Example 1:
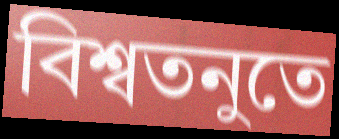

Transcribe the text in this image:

বিশ্বতনুতে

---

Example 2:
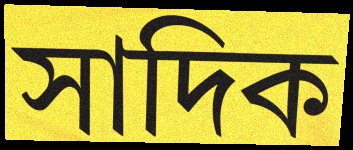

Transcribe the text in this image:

সাদিক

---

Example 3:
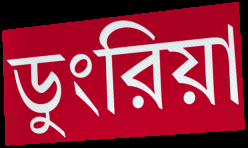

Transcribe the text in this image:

ডুংরিয়া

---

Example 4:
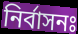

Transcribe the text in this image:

নির্বাসনঃ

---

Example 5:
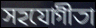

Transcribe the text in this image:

সহযোগীতা